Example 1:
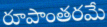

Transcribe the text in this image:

రూపాంతరమే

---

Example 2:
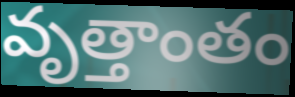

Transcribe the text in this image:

వృత్తాంతం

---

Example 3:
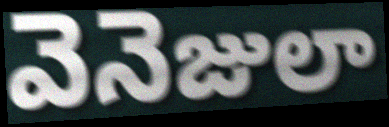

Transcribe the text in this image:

వెనెజులా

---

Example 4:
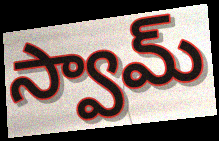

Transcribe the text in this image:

స్వామ్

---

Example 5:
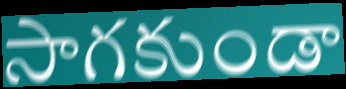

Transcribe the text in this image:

సాగకుండా